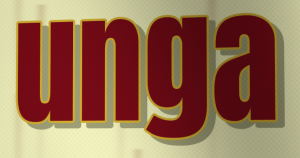
unga